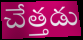
చేత్తడు